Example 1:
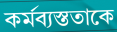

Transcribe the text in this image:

কর্মব্যস্ততাকে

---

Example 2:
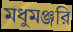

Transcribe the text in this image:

মধুমঞ্জরি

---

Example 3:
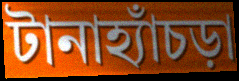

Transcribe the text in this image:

টানাহ্যাঁচড়া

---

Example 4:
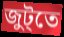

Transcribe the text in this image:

জুট্তে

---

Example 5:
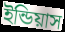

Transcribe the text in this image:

ইন্ডিয়াস